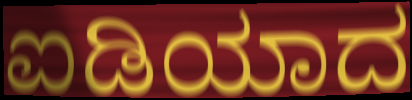
ಐಡಿಯಾದ